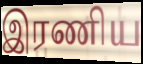
இரணிய